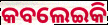
କବଲେଇକି